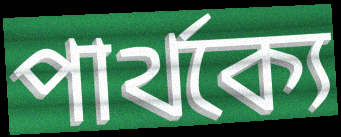
পার্থক্যে